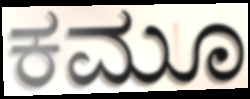
ಕಮೂ